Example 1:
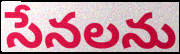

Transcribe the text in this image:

సేనలను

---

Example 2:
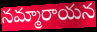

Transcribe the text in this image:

నమ్మారాయన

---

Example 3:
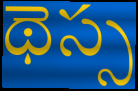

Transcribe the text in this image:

థెస్స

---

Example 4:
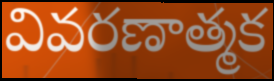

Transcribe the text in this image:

వివరణాత్మక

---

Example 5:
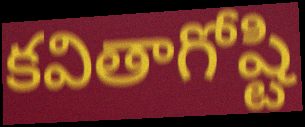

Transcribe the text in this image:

కవితాగోష్టి